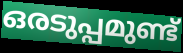
ഒരടുപ്പമുണ്ട്